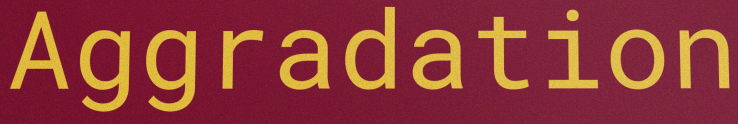
Aggradation